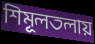
শিমূলতলায়